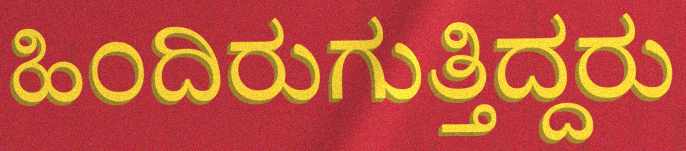
ಹಿಂದಿರುಗುತ್ತಿದ್ದರು